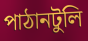
পাঠানটুলি